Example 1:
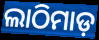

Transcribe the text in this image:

ଲାଠିମାଡ଼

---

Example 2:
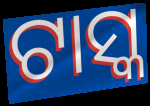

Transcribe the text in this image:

ଟାସ୍କ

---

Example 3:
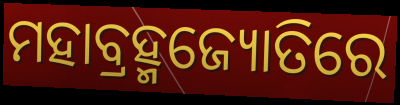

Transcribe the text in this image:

ମହାବ୍ରହ୍ମଜ୍ୟୋତିରେ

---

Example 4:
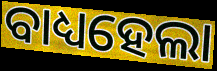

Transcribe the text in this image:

ବାଧ୍ୟହେଲା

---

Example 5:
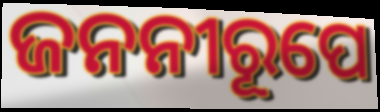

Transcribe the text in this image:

ଜନନୀରୂପେ